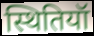
स्थितियॉ